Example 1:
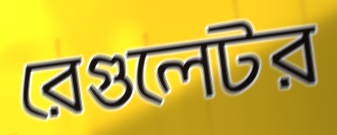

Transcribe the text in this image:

রেগুলেটর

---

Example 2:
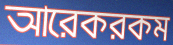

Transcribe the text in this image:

আরেকরকম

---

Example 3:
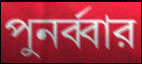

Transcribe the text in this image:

পুনর্ব্বার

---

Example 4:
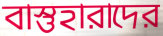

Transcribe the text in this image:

বাস্তুহারাদের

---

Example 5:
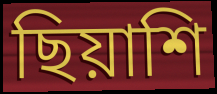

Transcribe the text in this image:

ছিয়াশি